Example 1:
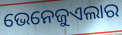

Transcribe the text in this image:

ଭେନେଜୁଏଲାର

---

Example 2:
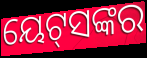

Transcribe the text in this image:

ୟେଟ୍‌ସଙ୍କର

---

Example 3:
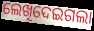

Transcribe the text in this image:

ଲେଖିଦେଇଗଲା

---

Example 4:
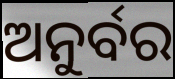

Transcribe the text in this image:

ଅନୁର୍ବର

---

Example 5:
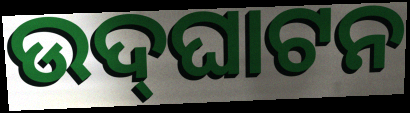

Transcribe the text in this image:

ଉଦ୍‌ଘାଟନ